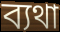
ব্যথা